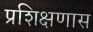
प्रशिक्षणास